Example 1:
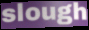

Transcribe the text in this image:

slough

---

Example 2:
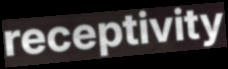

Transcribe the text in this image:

receptivity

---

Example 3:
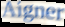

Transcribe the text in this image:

Aigner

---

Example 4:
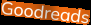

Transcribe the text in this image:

Goodreads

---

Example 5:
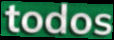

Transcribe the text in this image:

todos